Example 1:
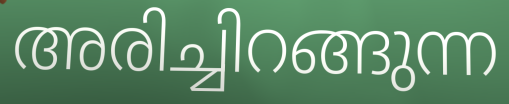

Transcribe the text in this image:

അരിച്ചിറങ്ങുന്ന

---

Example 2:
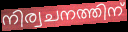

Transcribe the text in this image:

നിര്വചനത്തിന്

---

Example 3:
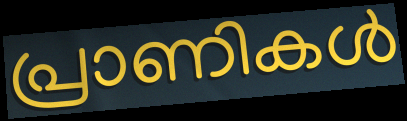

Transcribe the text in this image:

പ്രാണികൾ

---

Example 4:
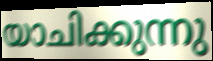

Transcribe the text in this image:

യാചിക്കുന്നു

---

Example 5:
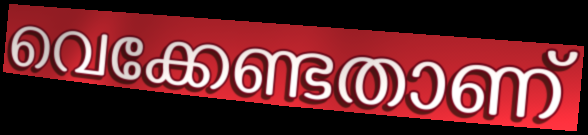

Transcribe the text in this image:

വെക്കേണ്ടതാണ്